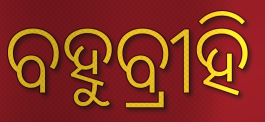
ବହୁବ୍ରୀହି